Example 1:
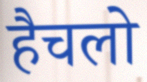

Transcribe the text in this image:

हैचलो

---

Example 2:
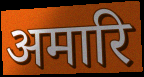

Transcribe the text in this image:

अमारि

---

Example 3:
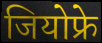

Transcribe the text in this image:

जियोफ्रे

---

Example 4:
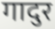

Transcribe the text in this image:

गादुर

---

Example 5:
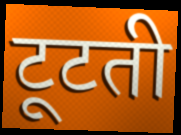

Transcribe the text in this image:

टूटती